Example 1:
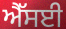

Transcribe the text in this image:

ਐੱਸਈ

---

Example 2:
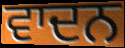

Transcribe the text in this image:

ਵਾਦਨ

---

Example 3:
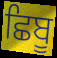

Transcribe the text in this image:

ਛਿਬੂ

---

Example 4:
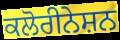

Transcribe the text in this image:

ਕਲੋਰੀਨੇਸ਼ਨ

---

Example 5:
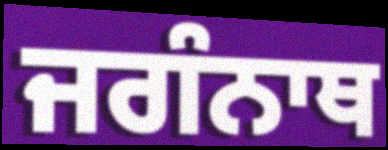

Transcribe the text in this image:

ਜਗੰਨਾਥ